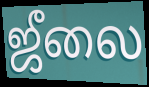
ஜீலை